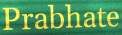
Prabhate